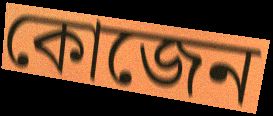
কোজেন